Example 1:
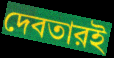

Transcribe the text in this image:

দেবতারই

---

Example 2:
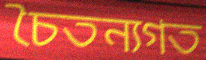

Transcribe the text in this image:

চৈতন্যগত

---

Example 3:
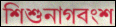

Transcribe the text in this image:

শিশুনাগবংশ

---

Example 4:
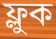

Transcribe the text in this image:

ফ্লুক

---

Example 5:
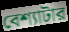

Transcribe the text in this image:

বেশ্যাটার